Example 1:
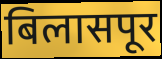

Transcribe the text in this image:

बिलासपूर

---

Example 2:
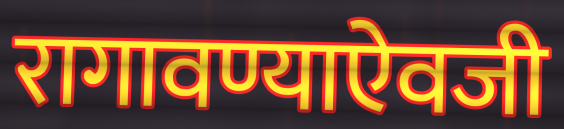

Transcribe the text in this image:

रागावण्याऐवजी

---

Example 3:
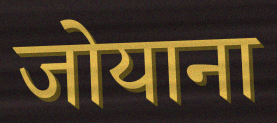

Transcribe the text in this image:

जोयाना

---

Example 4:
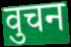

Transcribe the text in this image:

वुचन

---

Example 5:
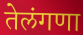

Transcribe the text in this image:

तेलंगणा